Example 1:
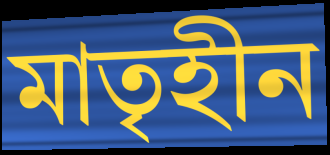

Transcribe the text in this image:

মাতৃহীন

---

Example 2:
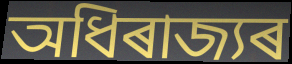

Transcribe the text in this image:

অধিৰাজ্যৰ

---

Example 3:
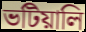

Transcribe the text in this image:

ভটিয়ালি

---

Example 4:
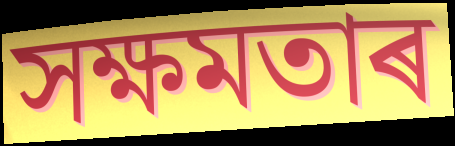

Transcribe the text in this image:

সক্ষমতাৰ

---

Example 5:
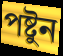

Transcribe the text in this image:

পষ্টুন